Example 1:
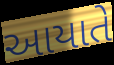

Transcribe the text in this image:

આયાતે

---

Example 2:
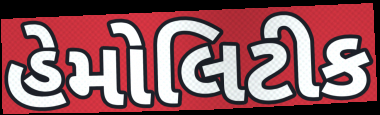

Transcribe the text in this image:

હેમોલિટીક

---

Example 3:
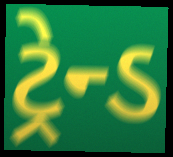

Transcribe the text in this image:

ટ્રેન્ડ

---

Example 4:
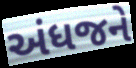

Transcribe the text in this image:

અંધજને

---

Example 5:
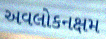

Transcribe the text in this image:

અવલોકનક્ષમ